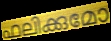
ഫലിക്കുമോ